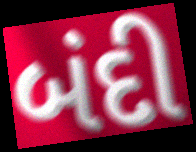
બંદી